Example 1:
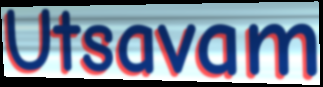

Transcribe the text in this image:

Utsavam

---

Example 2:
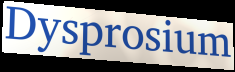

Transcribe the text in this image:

Dysprosium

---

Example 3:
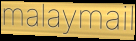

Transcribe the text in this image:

malaymail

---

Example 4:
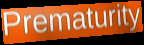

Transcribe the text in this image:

Prematurity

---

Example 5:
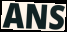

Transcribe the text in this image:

ANS